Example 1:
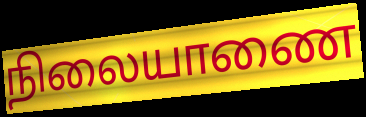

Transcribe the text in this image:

நிலையாணை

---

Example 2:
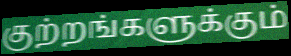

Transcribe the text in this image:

குற்றங்களுக்கும்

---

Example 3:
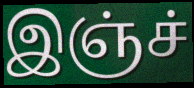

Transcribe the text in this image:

இஞ்ச்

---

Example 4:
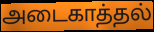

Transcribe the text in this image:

அடைகாத்தல்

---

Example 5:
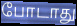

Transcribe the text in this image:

போடாது